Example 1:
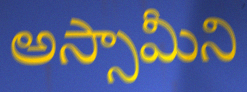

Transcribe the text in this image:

అస్సామీని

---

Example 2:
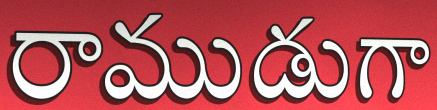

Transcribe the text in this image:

రాముడుగా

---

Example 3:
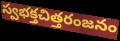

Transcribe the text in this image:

స్వభక్తచిత్తరంజనం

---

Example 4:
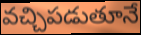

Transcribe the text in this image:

వచ్చిపడుతూనే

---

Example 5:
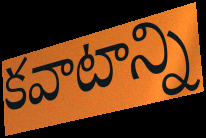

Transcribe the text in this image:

కవాటాన్ని